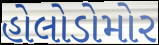
હોલોડોમોર